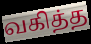
வகித்த